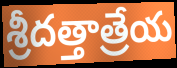
శ్రీదత్తాత్రేయ